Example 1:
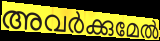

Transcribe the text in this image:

അവർക്കുമേൽ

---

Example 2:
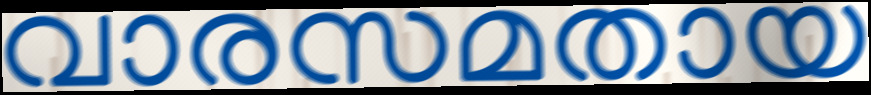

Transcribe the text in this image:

വാരസമതായ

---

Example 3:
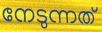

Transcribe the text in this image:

നേടുന്നത്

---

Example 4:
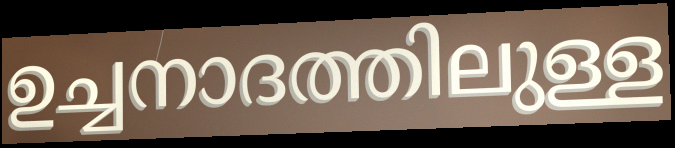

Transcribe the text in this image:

ഉച്ചനാദത്തിലുള്ള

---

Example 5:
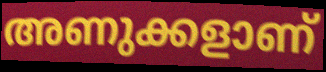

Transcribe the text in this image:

അണുക്കളാണ്